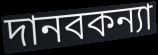
দানবকন্যা